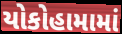
યોકોહામામાં